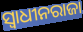
ସ୍ୱାଧୀନରାଜା